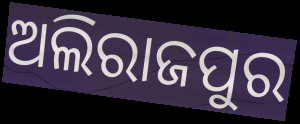
ଅଲିରାଜପୁର